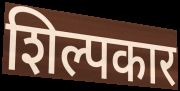
शिल्पकार